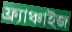
ফ্র্যাঞ্চাইজ